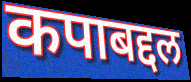
कपाबद्दल